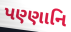
પણ્ણાનિ